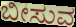
ಬೀಸುವ